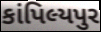
કાંપિલ્યપુર